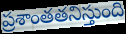
ప్రశాంతతనిస్తుంది